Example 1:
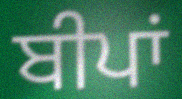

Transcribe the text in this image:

ਬੀਪਾਂ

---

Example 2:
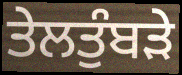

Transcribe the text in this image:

ਤੇਲਤੁੰਬੜੇ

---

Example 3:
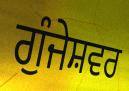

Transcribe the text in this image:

ਗੁੰਜੇਸ਼ਵਰ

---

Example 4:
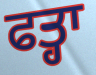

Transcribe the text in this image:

ਫਤ੍ਹਾ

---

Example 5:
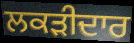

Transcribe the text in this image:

ਲਕੜੀਦਾਰ